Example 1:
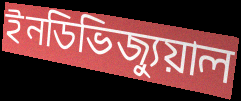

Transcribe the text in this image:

ইনডিভিজ্যুয়াল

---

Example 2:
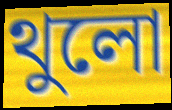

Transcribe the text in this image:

থুলো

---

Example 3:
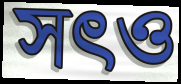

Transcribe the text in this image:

সৎও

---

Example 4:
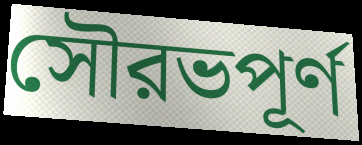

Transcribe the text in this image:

সৌরভপূর্ণ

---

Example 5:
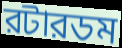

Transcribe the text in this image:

রটারডম